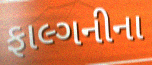
ફાલ્ગનીના